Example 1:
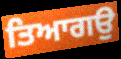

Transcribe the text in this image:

ਤਿਆਗਉ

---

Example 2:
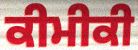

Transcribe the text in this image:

ਕੀਮੀਕੀ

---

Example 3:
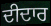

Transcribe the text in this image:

ਦੀਦਾਰ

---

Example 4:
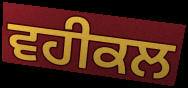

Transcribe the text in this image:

ਵਹੀਕਲ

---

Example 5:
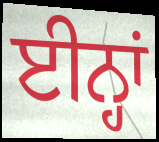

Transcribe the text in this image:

ਈਨ੍ਹਾਂ